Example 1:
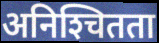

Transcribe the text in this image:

अनिश्‍चितता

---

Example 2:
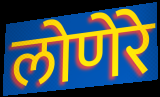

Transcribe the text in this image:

लोणेरे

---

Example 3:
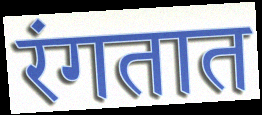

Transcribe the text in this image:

रंगतात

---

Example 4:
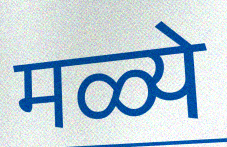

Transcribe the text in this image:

मळ्ये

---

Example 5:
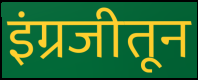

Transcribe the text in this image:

इंग्रजीतून